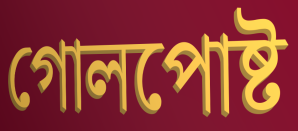
গোলপোষ্ট